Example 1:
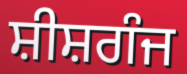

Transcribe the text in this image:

ਸ਼ੀਸ਼ਗੰਜ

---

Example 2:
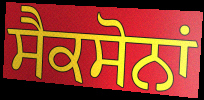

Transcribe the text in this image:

ਸੈਕਸੋਨਾਂ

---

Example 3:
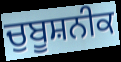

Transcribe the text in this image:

ਚੁਬੂਸ਼ਨੀਕ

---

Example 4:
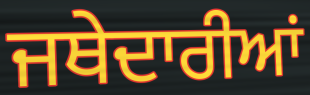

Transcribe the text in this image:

ਜਥੇਦਾਰੀਆਂ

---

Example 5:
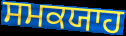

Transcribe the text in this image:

ਸਮਕਯਾਹ